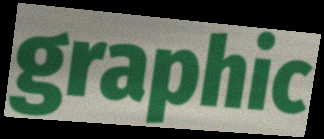
graphic